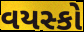
વયસ્કો